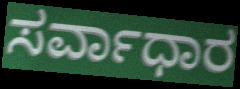
ಸರ್ವಾಧಾರ